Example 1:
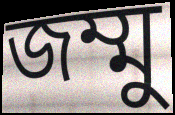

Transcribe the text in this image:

জম্মু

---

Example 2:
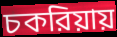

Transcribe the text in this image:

চকরিয়ায়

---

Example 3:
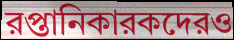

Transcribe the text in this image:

রপ্তানিকারকদেরও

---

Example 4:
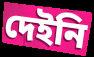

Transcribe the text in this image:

দেইনি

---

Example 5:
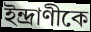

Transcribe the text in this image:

ইন্দ্রাণীকে